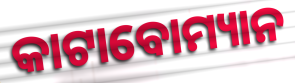
କାଟାବୋମ୍ୟାନ